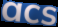
acs